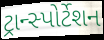
ટ્રાન્સ્પોર્ટેશન